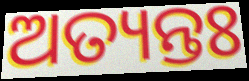
ଅତ୍ୟନ୍ତଃ